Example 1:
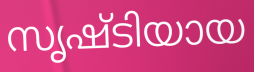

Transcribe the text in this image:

സൃഷ്ടിയായ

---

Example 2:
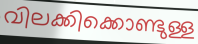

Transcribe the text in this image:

വിലക്കിക്കൊണ്ടുള്ള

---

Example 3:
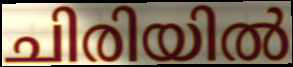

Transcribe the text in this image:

ചിരിയിൽ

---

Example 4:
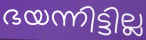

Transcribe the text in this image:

ഭയന്നിട്ടില്ല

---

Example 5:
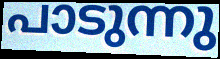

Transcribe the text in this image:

പാടുന്നു